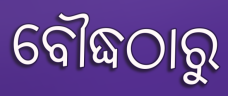
ବୌଦ୍ଧଠାରୁ